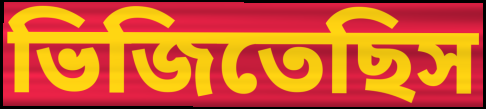
ভিজিতেছিস